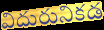
విదురునికడ